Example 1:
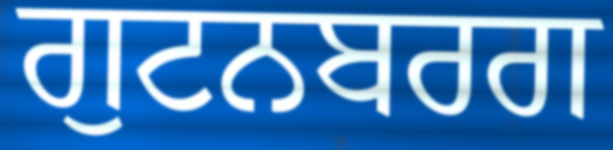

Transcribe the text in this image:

ਗੁਟਨਬਰਗ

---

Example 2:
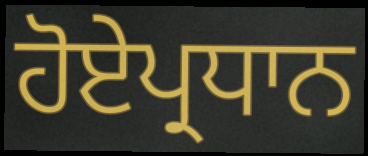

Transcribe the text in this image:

ਹੋਏਪ੍ਰਧਾਨ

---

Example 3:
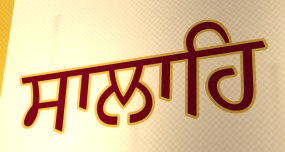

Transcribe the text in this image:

ਸਾਲਾਹਿ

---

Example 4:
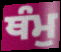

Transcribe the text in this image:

ਥੰਮੁ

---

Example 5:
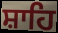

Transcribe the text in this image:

ਸ਼ਾਹਿ